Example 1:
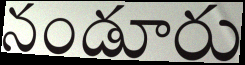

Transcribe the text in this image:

నండూరు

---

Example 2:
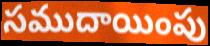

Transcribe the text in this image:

సముదాయింపు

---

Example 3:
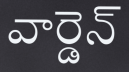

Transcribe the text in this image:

వార్డెన్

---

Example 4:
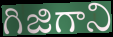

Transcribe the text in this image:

గిజిగాని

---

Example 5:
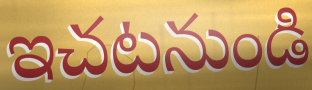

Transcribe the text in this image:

ఇచటనుండి